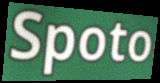
Spoto